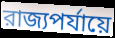
রাজ্যপর্যায়ে